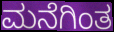
ಮನೆಗಿಂತ